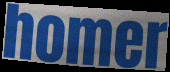
homer